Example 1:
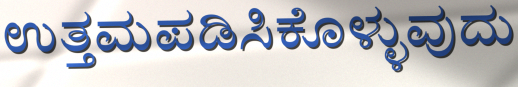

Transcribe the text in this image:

ಉತ್ತಮಪಡಿಸಿಕೊಳ್ಳುವುದು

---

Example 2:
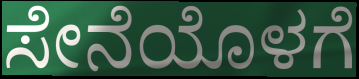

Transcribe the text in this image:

ಸೇನೆಯೊಳಗೆ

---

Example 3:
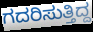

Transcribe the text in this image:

ಗದರಿಸುತ್ತಿದ್ದ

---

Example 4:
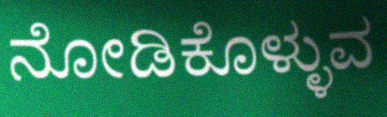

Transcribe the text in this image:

ನೋಡಿಕೊಳ್ಳುವ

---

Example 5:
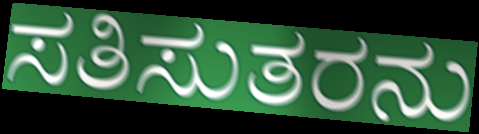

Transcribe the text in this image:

ಸತಿಸುತರನು